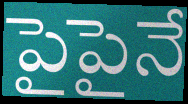
పైపైనే